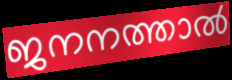
ജനനത്താൽ